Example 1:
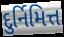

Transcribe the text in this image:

દુર્નિમિત્ત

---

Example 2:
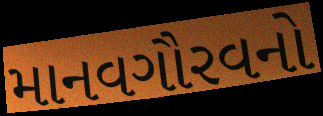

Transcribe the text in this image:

માનવગૌરવનો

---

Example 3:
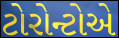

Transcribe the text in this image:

ટોરોન્ટોએ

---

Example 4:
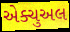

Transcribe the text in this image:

એક્ચુઅલ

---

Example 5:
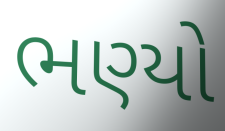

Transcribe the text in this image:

ભણ્યો